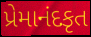
પ્રેમાનંદકૃત